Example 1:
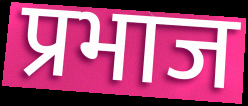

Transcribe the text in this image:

प्रभाज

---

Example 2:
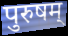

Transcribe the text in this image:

पुरुषम्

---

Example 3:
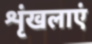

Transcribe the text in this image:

शृंखलाएं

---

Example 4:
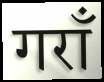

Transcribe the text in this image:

गराँ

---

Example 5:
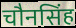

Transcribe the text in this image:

चौनसिंह